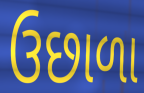
ઉછાળા